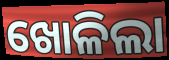
ଖୋଳିଲା